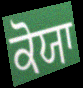
ਕੋਯਾ